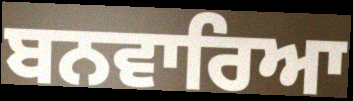
ਬਨਵਾਰਿਆ